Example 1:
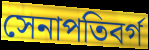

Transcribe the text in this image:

সেনাপতিবর্গ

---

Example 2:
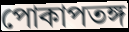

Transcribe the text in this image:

পোকাপতঙ্গ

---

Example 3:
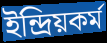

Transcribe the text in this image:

ইন্দ্রিয়কর্ম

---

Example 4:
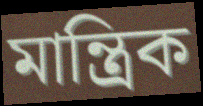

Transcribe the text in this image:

মান্ত্রিক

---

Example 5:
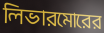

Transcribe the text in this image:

লিভারমোরের